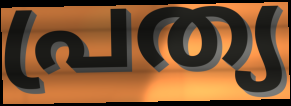
പ്രത്യ